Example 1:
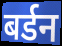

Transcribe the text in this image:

बर्डन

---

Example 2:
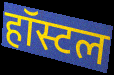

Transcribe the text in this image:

हॉस्टल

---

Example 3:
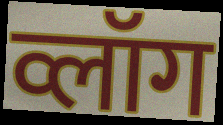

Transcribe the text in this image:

व्लॉग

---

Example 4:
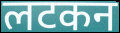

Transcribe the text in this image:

लटकन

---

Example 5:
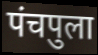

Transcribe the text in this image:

पंचपुला